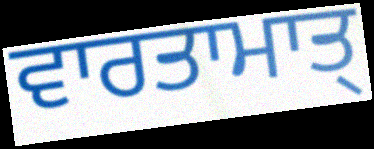
ਵਾਰਤਾਮਾਤ੍